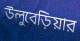
উলুবেড়িয়ার